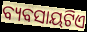
ବ୍ୟବସାୟଟିଏ